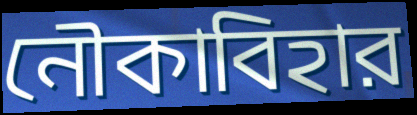
নৌকাবিহার